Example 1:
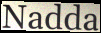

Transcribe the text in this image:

Nadda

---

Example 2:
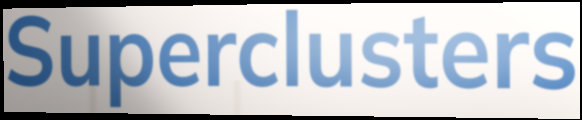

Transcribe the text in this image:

Superclusters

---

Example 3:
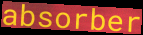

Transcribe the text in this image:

absorber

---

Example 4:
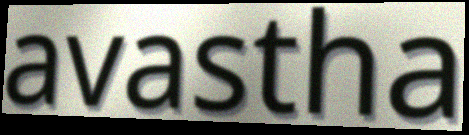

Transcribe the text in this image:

avastha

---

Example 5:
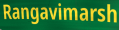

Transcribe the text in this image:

Rangavimarsh